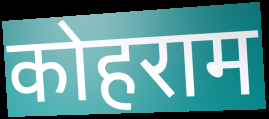
कोहराम